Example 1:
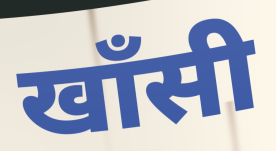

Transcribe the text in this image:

खाँसी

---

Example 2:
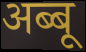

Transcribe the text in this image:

अब्बू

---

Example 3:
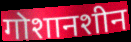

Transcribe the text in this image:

गोशानशीन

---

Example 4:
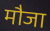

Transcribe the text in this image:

मौजा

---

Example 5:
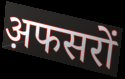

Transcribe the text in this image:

अ़फसरों